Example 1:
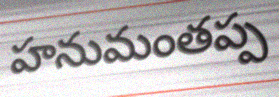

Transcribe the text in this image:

హనుమంతప్ప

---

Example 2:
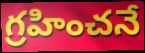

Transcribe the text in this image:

గ్రహించనే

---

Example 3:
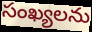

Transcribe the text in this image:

సంఖ్యలను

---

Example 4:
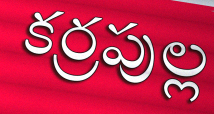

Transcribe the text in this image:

కర్రపుల్ల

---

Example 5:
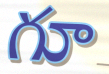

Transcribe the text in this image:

గూ